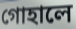
গোহালে